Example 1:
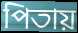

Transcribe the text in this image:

পিতায়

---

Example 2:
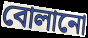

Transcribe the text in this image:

বোলানো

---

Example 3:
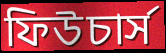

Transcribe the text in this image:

ফিউচার্স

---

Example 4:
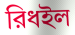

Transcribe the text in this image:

রিধইল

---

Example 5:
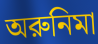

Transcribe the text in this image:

অরুনিমা